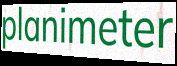
planimeter